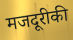
मजदूरीकी